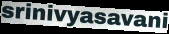
srinivyasavani